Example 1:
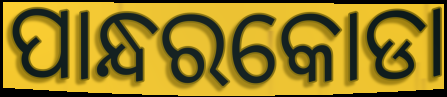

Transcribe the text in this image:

ପାନ୍ଧରକୋଡା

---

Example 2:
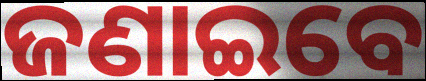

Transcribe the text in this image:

ଜଣାଇବେ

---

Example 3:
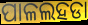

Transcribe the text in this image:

ପାଳଲହଡା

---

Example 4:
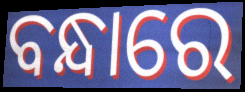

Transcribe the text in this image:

ବନ୍ଧାରେ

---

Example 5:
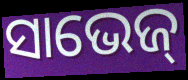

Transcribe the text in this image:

ସାଭେଜ୍